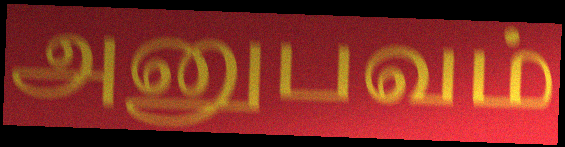
அனுபவம்